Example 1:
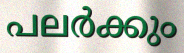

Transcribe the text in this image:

പലർക്കും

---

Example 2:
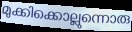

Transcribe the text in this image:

മുക്കിക്കൊല്ലുന്നൊരു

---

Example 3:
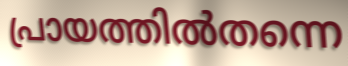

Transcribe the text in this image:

പ്രായത്തിൽതന്നെ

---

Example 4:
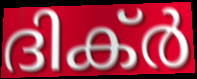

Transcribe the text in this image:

ദിക്ർ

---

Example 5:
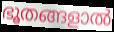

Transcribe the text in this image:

ഭൂതങ്ങളാൽ